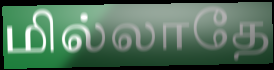
மில்லாதே